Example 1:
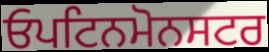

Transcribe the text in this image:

ਓਪਟਿਨਮੋਨਸਟਰ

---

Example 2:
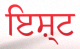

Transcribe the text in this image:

ਇਸ਼੍ਟ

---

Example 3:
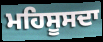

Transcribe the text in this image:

ਮਹਿਸੂਸਦਾ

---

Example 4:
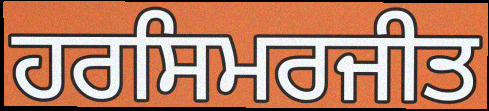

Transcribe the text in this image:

ਹਰਸਿਮਰਜੀਤ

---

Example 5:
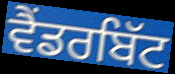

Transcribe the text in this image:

ਵੈਂਡਰਬਿੱਟ